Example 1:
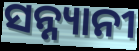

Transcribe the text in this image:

ସନ୍ନ୍ୟାନୀ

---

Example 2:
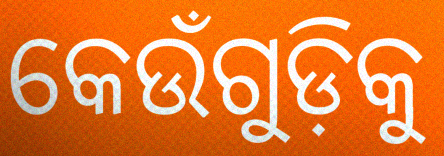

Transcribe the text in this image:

କେଉଁଗୁଡ଼ିକୁ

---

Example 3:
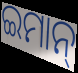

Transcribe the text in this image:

ଇମାନ୍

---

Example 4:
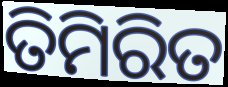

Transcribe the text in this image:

ତିମିରିତ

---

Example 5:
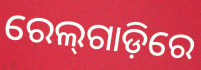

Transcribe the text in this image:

ରେଲ୍‌ଗାଡ଼ିରେ